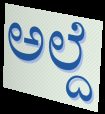
ಅಲ್ದೆ